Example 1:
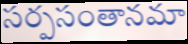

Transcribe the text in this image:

సర్పసంతానమా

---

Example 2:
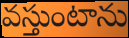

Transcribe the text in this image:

వస్తుంటాను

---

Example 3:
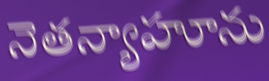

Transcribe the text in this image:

నెతన్యాహూను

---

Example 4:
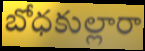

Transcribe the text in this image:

బోధకుల్లారా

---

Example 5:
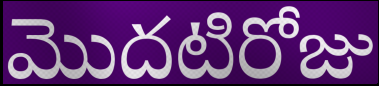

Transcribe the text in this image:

మొదటిరోజు